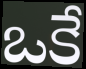
ఒకే